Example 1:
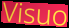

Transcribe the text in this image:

Visuo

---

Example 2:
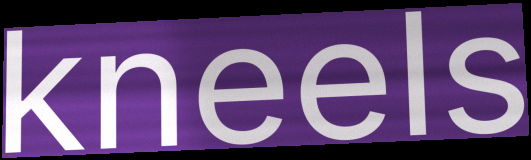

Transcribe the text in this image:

kneels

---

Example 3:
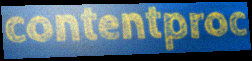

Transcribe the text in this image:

contentproc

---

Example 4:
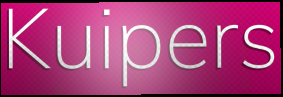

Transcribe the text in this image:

Kuipers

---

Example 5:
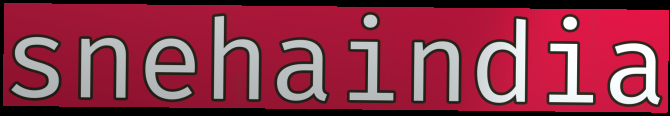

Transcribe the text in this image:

snehaindia